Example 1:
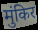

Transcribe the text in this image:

मुंकिर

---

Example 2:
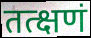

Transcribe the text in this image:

तत्क्षणं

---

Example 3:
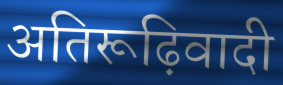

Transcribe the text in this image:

अतिरूढ़िवादी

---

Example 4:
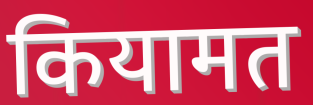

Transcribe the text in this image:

कियामत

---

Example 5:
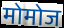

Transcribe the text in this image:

मोमोज